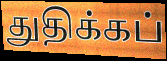
துதிக்கப்